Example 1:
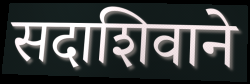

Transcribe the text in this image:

सदाशिवाने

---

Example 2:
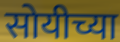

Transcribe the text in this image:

सोयीच्या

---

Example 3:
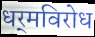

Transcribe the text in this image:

धर्मविरोध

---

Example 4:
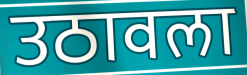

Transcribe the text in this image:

उठावला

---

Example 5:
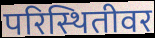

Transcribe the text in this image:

परिस्थितीवर